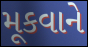
મૂકવાને